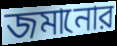
জমানোর